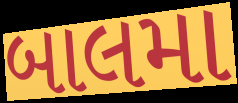
બાલમા